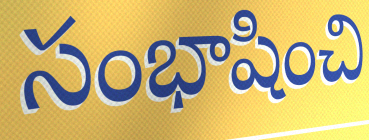
సంభాషించి